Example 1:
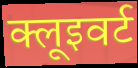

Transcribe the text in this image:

क्लूइवर्ट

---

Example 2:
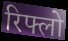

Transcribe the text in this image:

रिफ्लो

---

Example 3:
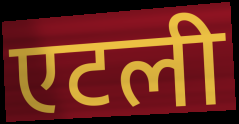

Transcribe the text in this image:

एटली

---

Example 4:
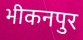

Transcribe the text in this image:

भीकनपुर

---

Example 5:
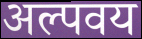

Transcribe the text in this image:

अल्पवय